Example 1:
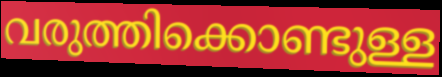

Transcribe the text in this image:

വരുത്തിക്കൊണ്ടുള്ള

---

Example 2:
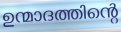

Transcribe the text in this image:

ഉന്മാദത്തിന്റെ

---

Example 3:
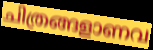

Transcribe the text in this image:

ചിത്രങ്ങളാണവ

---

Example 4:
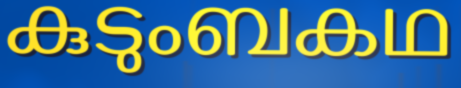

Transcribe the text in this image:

കുടുംബകഥ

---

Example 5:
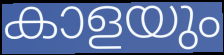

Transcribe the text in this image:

കാളയും